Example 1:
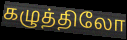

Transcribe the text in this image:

கழுத்திலோ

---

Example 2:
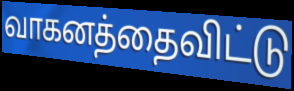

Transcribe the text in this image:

வாகனத்தைவிட்டு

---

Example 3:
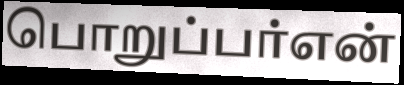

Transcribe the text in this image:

பொறுப்பர்என்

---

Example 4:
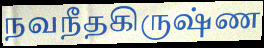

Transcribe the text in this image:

நவநீதகிருஷ்ண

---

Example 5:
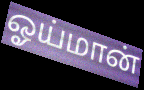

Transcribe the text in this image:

ஓய்மான்